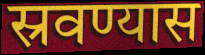
स्रवण्यास